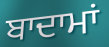
ਬਾਦਾਮਾਂ